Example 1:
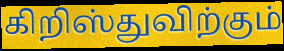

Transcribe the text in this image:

கிறிஸ்துவிற்கும்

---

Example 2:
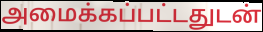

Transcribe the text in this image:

அமைக்கப்பட்டதுடன்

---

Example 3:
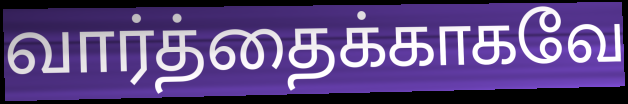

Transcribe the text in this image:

வார்த்தைக்காகவே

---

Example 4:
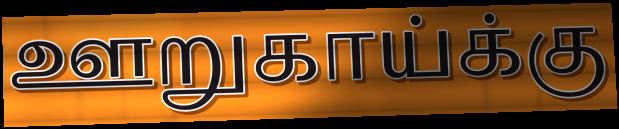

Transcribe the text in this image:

ஊறுகாய்க்கு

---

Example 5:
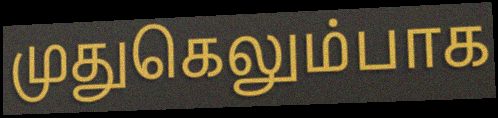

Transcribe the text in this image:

முதுகெலும்பாக